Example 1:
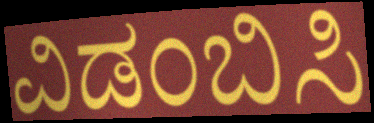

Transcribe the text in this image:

ವಿಡಂಬಿಸಿ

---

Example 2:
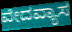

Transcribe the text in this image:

ವೇದವ್ಯಾಸ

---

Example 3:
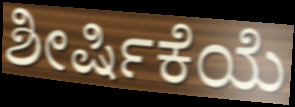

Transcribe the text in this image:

ಶೀರ್ಷಿಕೆಯೆ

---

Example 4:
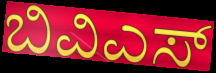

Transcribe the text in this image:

ಬಿವಿಎಸ್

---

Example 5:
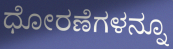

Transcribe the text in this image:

ಧೋರಣೆಗಳನ್ನೂ